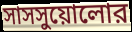
সাসসুয়োলোর